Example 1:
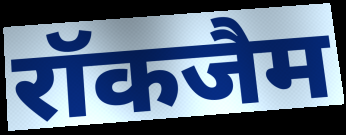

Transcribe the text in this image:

रॉकजैम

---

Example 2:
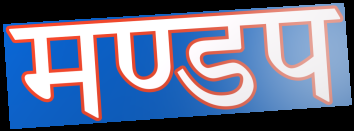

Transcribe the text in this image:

मण्‍डप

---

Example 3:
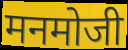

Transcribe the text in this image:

मनमोजी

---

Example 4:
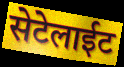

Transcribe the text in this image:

सेटेलाईट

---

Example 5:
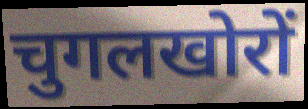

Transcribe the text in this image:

चुगलखोरों